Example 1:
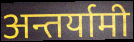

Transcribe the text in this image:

अन्‍तर्यामी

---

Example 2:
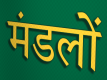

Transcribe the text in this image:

मंडलों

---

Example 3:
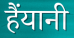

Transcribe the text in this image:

हैंयानी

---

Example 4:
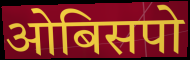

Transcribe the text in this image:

ओबिसपो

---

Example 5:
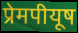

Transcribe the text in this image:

प्रेमपीयूष